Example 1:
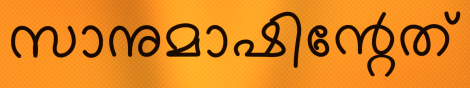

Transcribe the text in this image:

സാനുമാഷിന്റേത്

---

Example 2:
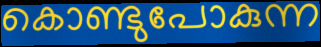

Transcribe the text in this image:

കൊണ്ടുപോകുന്ന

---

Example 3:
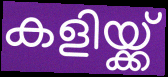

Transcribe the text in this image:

കളിയ്ക്ക്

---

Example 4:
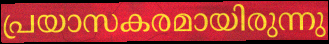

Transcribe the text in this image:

പ്രയാസകരമായിരുന്നു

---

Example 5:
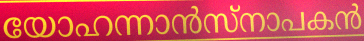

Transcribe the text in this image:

യോഹന്നാൻസ്നാപകൻ